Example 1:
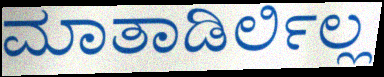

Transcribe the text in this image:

ಮಾತಾಡಿರ್ಲಿಲ್ಲ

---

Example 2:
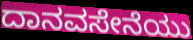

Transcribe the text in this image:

ದಾನವಸೇನೆಯು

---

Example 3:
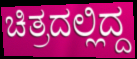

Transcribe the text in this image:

ಚಿತ್ರದಲ್ಲಿದ್ದ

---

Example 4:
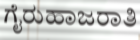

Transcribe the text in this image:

ಗೈರುಹಾಜರಾತಿ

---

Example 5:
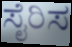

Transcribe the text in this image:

ಸೈರಿಸ